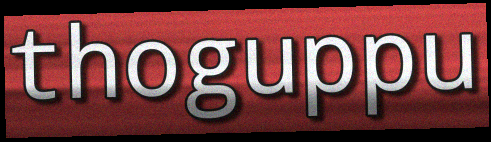
thoguppu